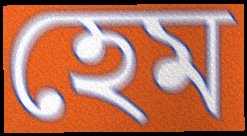
হেম